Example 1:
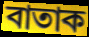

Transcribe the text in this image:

বাতাক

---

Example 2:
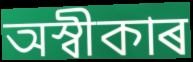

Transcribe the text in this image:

অস্বীকাৰ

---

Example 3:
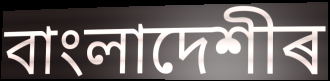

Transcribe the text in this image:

বাংলাদেশীৰ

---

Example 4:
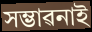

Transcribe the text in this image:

সম্ভাৱনাই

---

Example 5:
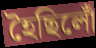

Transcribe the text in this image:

হৈছিলোঁ